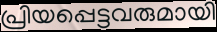
പ്രിയപ്പെട്ടവരുമായി